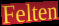
Felten